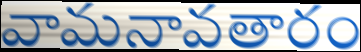
వామనావతారం